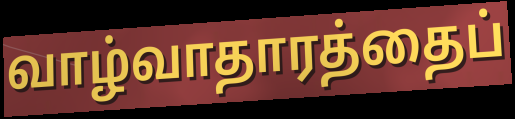
வாழ்வாதாரத்தைப்